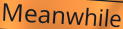
Meanwhile